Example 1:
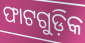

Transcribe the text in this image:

ଫାଟଗୁଡ଼ିକ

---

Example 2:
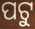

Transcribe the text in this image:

ପଟୁ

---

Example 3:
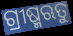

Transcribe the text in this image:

ଗ୍ରୀଷ୍ମଋତୁ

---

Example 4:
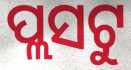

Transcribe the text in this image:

ପ୍ଲସଟୁ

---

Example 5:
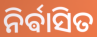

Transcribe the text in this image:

ନିର୍ଵାସିତ